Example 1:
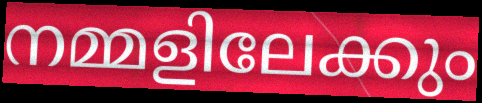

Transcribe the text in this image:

നമ്മളിലേക്കും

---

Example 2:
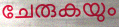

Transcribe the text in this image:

ചേരുകയും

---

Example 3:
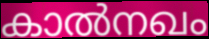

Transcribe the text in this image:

കാൽനഖം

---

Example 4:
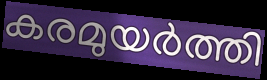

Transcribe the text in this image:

കരമുയർത്തി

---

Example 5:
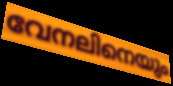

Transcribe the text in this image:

വേനലിനെയും